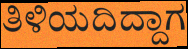
ತಿಳಿಯದಿದ್ದಾಗ